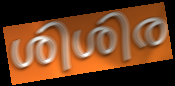
ശിശിര